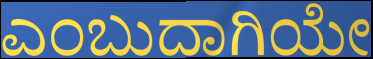
ಎಂಬುದಾಗಿಯೇ